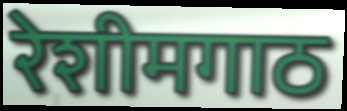
रेशीमगाठ